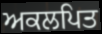
ਅਕਲਪਿਤ